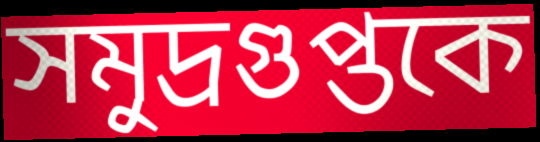
সমুদ্রগুপ্তকে